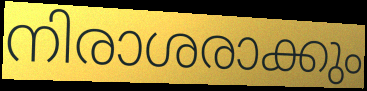
നിരാശരാക്കും